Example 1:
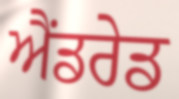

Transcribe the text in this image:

ਐਂਡਰੇਡ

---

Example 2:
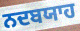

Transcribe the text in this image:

ਨਦਬਯਾਹ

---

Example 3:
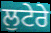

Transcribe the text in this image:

ਲੁਟੇਰੇ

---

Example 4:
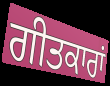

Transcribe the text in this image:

ਗੀਤਕਾਰਾਂ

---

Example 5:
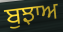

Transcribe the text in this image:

ਬੁਝਾਅ